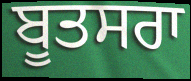
ਬੂਤਸਰਾ